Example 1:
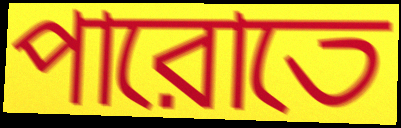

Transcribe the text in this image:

পারোতে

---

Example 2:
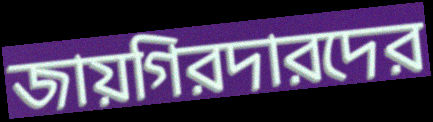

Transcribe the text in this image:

জায়গিরদারদের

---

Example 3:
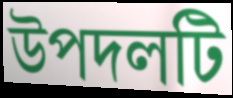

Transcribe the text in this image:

উপদলটি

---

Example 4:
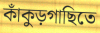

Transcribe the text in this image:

কাঁকুড়গাছিতে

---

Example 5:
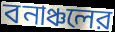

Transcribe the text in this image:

বনাঞ্চলের